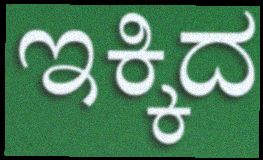
ಇಕ್ಕಿದ